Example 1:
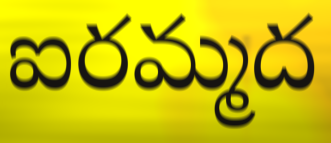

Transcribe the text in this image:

ఐరమ్మద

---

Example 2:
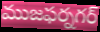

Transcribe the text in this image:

ముజఫర్నగర్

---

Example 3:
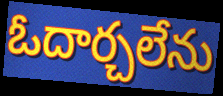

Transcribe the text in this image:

ఓదార్చలేను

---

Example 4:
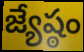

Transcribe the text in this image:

జ్యేష్ఠం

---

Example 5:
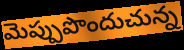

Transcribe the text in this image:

మెప్పుపొందుచున్న